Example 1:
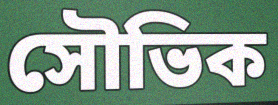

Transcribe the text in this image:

সৌভিক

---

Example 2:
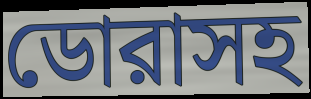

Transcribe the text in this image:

ডোরাসহ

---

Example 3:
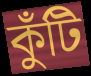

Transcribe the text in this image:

কুঁটি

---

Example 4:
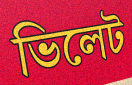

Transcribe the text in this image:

ভিলেট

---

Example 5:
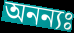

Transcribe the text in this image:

অনন্যঃ